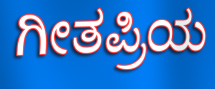
ಗೀತಪ್ರಿಯ